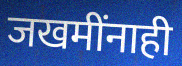
जखमींनाही